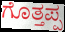
ಗೊತ್ತಪ್ಪ